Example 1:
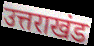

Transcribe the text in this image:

उत्तराखंड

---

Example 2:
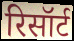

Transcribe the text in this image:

रिसॉर्ट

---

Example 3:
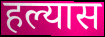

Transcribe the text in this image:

हल्यास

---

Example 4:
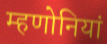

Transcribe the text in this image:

म्हणोनियां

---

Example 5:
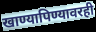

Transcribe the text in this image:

खाण्यापिण्यावरही